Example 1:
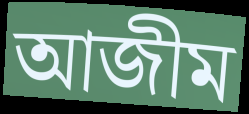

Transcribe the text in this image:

আজীম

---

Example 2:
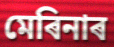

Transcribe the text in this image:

মেৰিনাৰ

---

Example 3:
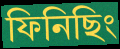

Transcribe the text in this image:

ফিনিছিং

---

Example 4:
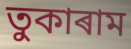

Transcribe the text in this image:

তুকাৰাম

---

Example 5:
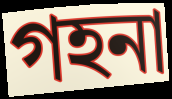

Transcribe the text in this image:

গহনা